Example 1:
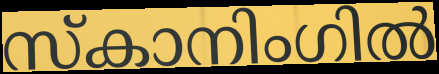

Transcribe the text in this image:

സ്കാനിംഗിൽ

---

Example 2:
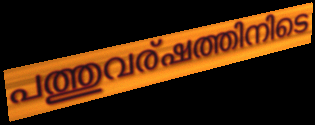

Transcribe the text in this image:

പത്തുവര്ഷത്തിനിടെ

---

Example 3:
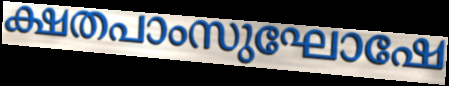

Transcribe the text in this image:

ക്ഷതപാംസുഘോഷേ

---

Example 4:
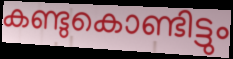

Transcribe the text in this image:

കണ്ടുകൊണ്ടിട്ടും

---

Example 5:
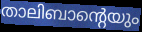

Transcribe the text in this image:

താലിബാന്റെയും